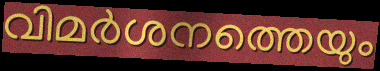
വിമർശനത്തെയും